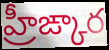
హ్రీఙ్కార